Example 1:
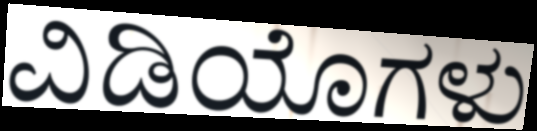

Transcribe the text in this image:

ವಿಡಿಯೊಗಳು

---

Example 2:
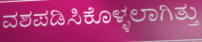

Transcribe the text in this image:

ವಶಪಡಿಸಿಕೊಳ್ಳಲಾಗಿತ್ತು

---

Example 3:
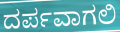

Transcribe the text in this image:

ದರ್ಪವಾಗಲಿ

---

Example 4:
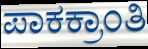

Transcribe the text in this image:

ಪಾಕಕ್ರಾಂತಿ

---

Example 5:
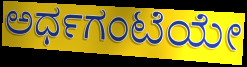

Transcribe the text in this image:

ಅರ್ಧಗಂಟೆಯೇ